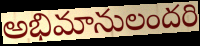
అభిమానులందరి